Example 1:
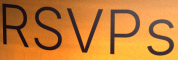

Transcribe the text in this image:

RSVPs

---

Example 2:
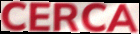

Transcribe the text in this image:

CERCA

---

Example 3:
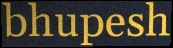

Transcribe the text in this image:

bhupesh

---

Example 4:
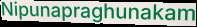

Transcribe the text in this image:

Nipunapraghunakam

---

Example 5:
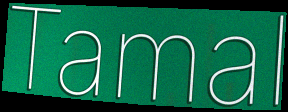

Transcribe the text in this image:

Tamal